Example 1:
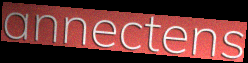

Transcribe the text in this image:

annectens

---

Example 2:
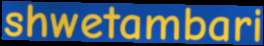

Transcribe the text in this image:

shwetambari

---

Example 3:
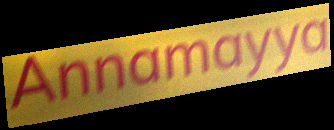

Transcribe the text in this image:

Annamayya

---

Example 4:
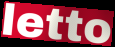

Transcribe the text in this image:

letto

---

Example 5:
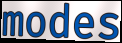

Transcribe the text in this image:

modes